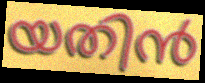
യതിൻ